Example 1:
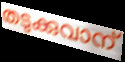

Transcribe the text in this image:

തടുക്കുവാന്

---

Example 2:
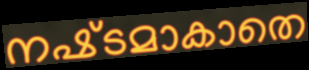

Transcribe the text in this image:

നഷ്‌ടമാകാതെ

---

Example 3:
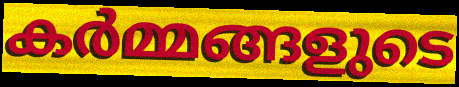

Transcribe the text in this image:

കർമ്മങ്ങളുടെ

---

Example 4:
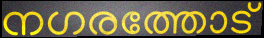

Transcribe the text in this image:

നഗരത്തോട്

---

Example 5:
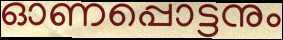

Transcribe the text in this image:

ഓണപ്പൊട്ടനും